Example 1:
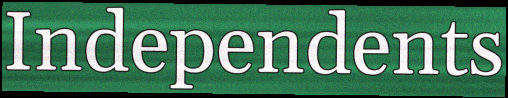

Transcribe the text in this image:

Independents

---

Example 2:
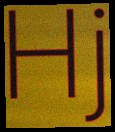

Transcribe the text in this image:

Hj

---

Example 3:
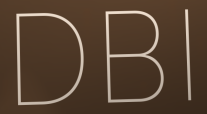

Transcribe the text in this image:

DBI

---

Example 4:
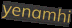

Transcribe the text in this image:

yenamhi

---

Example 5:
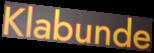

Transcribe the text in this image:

Klabunde